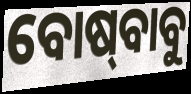
ବୋଷ୍‍ବାବୁ